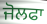
ਜੋਲਫਾ